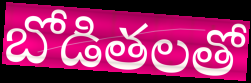
బోడితలతో